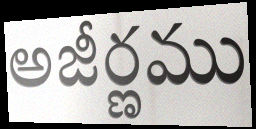
అజీర్ణము